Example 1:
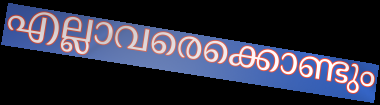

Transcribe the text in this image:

എല്ലാവരെക്കൊണ്ടും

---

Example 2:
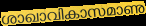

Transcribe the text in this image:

ശാഖാവികാസമാണു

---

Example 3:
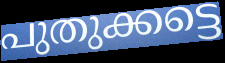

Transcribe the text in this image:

പുതുക്കട്ടെ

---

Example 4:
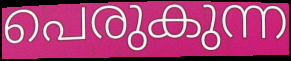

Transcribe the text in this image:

പെരുകുന്ന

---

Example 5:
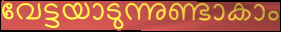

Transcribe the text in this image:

വേട്ടയാടുന്നുണ്ടാകാം